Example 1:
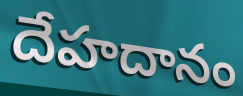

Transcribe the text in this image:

దేహదానం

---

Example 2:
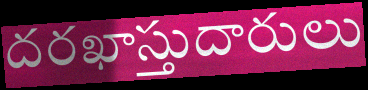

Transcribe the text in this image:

దరఖాస్తుదారులు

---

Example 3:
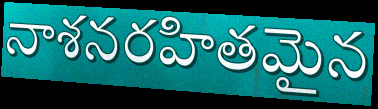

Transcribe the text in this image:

నాశనరహితమైన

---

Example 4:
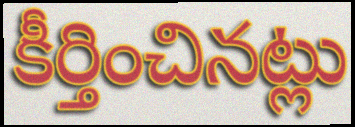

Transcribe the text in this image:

కీర్తించినట్లు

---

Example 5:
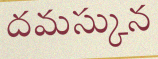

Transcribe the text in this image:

దమస్కున